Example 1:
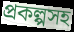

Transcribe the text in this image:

প্রকল্পসহ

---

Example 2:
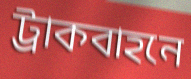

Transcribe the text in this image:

ট্রাকবাহনে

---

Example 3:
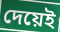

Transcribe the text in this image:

দেয়েই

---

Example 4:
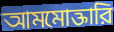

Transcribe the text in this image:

আমমোক্তারি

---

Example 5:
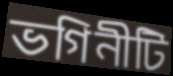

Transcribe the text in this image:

ভগিনীটি